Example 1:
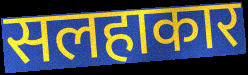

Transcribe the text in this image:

सलहाकार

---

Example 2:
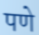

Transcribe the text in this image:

पणे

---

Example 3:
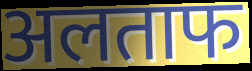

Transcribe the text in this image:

अलताफ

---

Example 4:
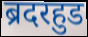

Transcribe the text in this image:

ब्रदरहुड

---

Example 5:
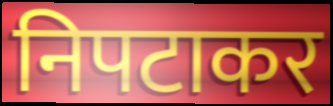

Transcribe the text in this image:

निपटाकर